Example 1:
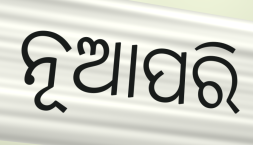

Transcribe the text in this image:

ନୂଆପରି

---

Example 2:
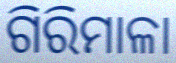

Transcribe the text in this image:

ଗିରିମାଳା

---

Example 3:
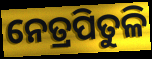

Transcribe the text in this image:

ନେତ୍ରପିତୁଳି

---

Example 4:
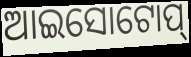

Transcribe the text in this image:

ଆଇସୋଟୋପ୍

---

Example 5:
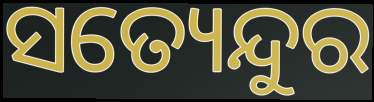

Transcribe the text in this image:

ସତ୍ୟେନ୍ଦୁର